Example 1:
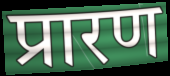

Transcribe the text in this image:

प्रारण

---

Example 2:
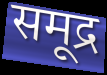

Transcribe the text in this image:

समूद्र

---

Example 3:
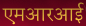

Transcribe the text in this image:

एमआरआई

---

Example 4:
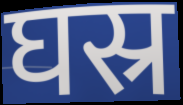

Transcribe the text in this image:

घस्र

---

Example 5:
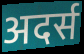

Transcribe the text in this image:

अदर्स